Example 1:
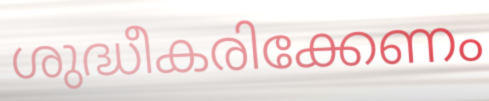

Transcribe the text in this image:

ശുദ്ധീകരിക്കേണം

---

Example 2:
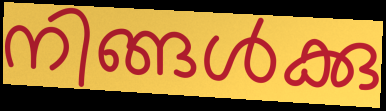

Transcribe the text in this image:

നിങ്ങൾക്കു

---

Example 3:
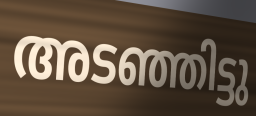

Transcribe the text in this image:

അടഞ്ഞിട്ടു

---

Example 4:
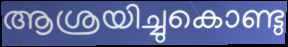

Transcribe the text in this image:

ആശ്രയിച്ചുകൊണ്ടു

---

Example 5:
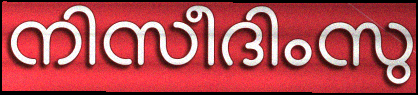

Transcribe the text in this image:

നിസീദിംസു